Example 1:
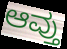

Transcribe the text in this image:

ಆವ್ತು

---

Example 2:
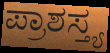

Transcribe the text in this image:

ಪ್ರಾಶಸ್ತ್ಯ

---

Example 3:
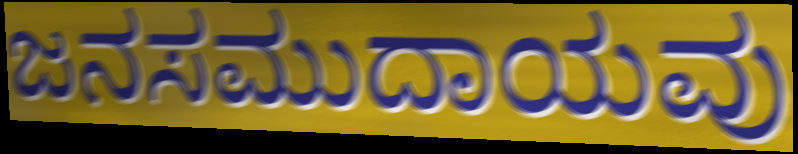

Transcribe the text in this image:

ಜನಸಮುದಾಯವು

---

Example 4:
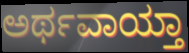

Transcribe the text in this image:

ಅರ್ಥವಾಯ್ತಾ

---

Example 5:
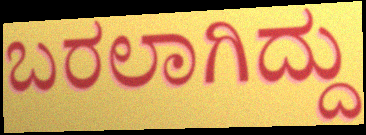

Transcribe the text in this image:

ಬರಲಾಗಿದ್ದು